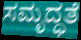
ಸಮೃದ್ಧತೆ